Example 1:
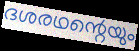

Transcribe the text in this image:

ദശരഥന്റെയും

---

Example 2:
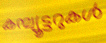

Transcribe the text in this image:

കമ്പ്യൂട്ടറുകൾ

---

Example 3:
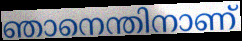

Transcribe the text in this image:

ഞാനെന്തിനാണ്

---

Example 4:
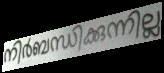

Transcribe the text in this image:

നിർബന്ധിക്കുന്നില്ല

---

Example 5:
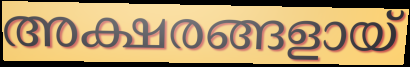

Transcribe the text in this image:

അക്ഷരങ്ങളായ്